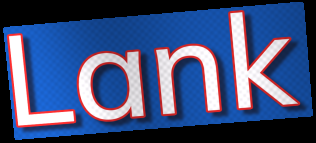
Lank